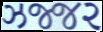
ઝજ્જર